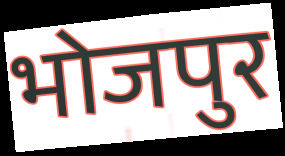
भोजपुर